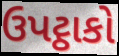
ઉપટ્ઠાકો